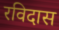
रविदास